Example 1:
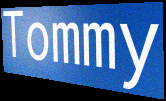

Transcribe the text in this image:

Tommy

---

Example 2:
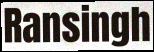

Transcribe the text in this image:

Ransingh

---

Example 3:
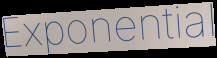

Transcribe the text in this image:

Exponential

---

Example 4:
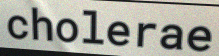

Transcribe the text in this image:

cholerae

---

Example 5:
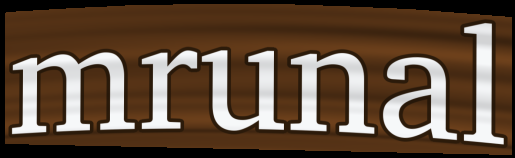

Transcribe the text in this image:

mrunal